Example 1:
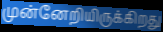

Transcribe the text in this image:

முன்னேறியிருக்கிறது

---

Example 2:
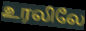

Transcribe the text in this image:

உரலிலே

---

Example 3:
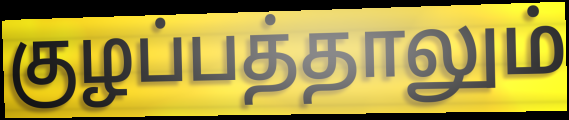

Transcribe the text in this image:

குழப்பத்தாலும்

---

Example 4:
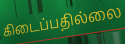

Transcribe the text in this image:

கிடைப்பதில்லை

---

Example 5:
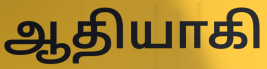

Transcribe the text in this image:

ஆதியாகி